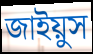
জাইয়ুস